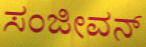
ಸಂಜೀವನ್